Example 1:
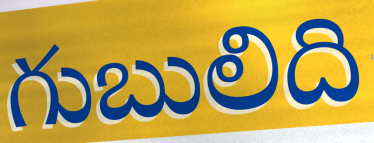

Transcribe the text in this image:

గుబులిది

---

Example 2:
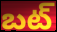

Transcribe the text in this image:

బట్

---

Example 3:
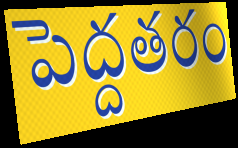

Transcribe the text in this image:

పెద్దతరం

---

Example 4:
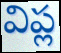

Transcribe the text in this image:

విప్ల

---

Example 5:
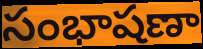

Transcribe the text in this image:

సంభాషణా